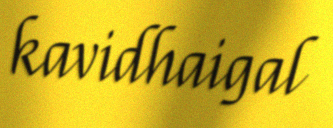
kavidhaigal